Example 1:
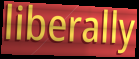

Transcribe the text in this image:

liberally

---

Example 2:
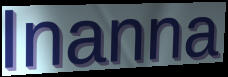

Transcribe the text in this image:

Inanna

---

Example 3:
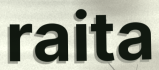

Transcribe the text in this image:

raita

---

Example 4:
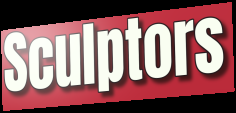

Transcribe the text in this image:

Sculptors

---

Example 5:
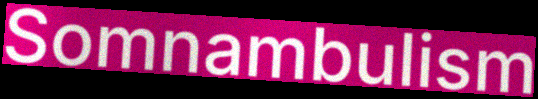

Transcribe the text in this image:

Somnambulism